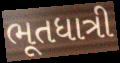
ભૂતધાત્રી